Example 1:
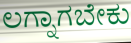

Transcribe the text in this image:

ಲಗ್ನಾಗಬೇಕು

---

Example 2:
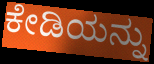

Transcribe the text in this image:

ಕೇಡಿಯನ್ನು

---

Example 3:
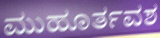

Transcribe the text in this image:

ಮುಹೂರ್ತವಶ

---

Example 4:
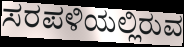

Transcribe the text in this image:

ಸರಪಳಿಯಲ್ಲಿರುವ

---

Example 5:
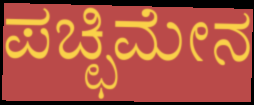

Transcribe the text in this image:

ಪಚ್ಛಿಮೇನ